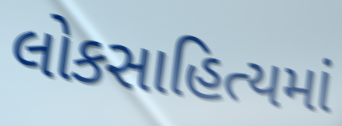
લોકસાહિત્યમાં